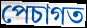
পেচাগত